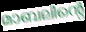
മാബലിന്റെ